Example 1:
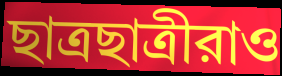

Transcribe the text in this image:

ছাত্রছাত্রীরাও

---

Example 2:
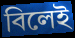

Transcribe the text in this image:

বিলেই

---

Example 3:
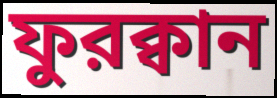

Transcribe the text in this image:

ফুরক্বান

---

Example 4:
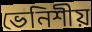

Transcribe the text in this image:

ভেনিশীয়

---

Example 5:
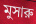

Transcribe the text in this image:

মুসারু